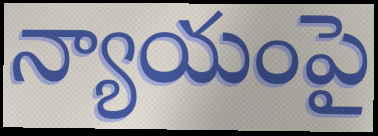
న్యాయంపై